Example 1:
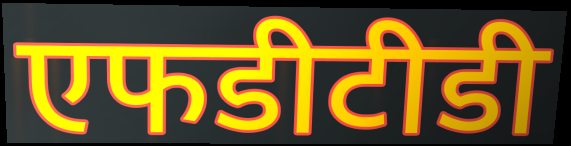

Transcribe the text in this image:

एफडीटीडी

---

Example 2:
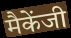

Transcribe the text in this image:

मैकेंजी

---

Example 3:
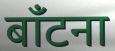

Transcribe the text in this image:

बाँटना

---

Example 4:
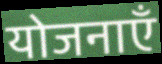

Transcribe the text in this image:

योजनाएँ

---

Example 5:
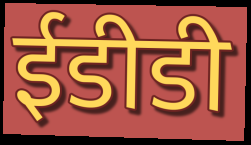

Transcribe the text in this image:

ईडीडी